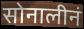
सोनालीनं